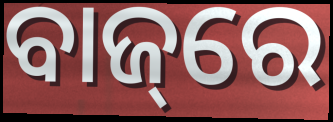
ବାଜ୍‌ରେ